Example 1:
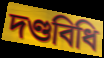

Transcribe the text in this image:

দণ্ডবিধি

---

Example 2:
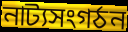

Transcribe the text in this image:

নাট্যসংগঠন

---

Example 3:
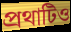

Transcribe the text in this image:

প্রথাটিও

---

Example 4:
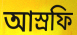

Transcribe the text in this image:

আস্রফি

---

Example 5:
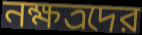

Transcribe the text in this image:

নক্ষত্রদের